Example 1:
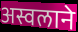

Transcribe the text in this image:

अस्वलाने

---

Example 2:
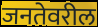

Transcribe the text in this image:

जनतेवरील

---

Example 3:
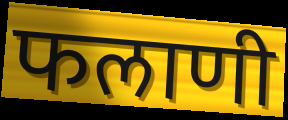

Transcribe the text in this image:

फलाणी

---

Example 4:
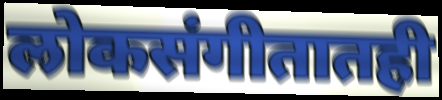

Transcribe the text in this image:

लोकसंगीतातही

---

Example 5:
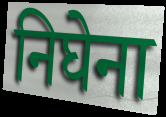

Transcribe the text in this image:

निघेना